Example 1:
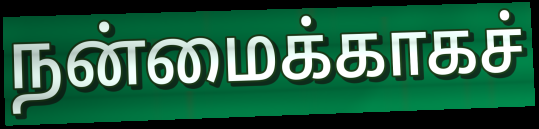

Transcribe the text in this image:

நன்மைக்காகச்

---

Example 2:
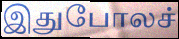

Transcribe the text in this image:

இதுபோலச்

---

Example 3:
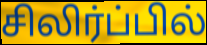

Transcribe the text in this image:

சிலிர்ப்பில்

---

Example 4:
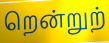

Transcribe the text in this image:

றென்றுற்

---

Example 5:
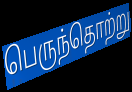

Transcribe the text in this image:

பெருந்தொற்று